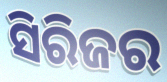
ସିରିଜର